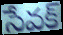
సేవక్